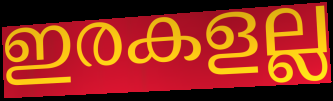
ഇരകളല്ല